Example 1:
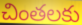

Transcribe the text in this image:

చింతలకు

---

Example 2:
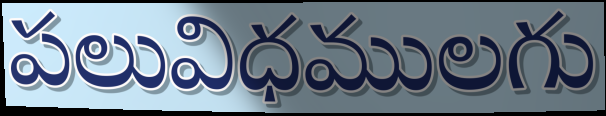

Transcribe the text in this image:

పలువిధములగు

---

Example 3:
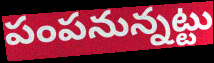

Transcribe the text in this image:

పంపనున్నట్టు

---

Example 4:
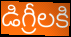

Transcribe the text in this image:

డిగ్రీలకి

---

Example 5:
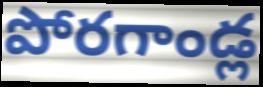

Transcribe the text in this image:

పోరగాండ్ల